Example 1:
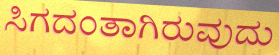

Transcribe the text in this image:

ಸಿಗದಂತಾಗಿರುವುದು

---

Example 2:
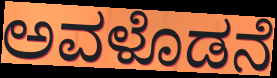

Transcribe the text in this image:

ಅವಳೊಡನೆ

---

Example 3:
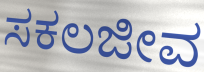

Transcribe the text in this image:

ಸಕಲಜೀವ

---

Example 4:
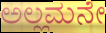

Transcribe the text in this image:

ಅಲ್ಲಮನೇ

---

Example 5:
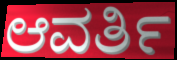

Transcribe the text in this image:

ಆವರ್ತಿ